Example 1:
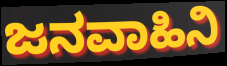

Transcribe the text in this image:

ಜನವಾಹಿನಿ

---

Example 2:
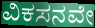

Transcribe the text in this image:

ವಿಕಸನವೇ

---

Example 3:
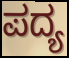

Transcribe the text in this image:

ಪದ್ಯ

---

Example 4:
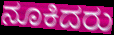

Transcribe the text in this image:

ನೂಕಿದರು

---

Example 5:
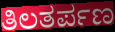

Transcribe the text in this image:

ತಿಲತರ್ಪಣ